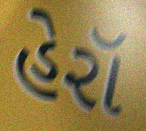
હેરૉ